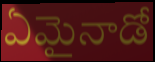
ఏమైనాడో